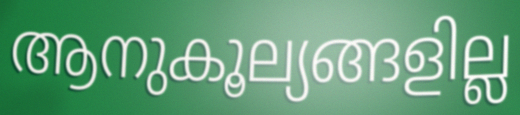
ആനുകൂല്യങ്ങളില്ല